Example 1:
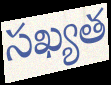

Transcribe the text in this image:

సఖ్యత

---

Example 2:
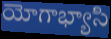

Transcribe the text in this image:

యోగాభ్యాసి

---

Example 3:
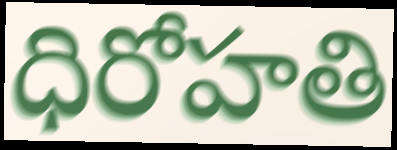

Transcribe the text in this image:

ధిరోహతి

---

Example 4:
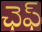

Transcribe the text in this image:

ఛెఫ్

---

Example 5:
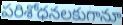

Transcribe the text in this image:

పరిశోధనలకుగానూ